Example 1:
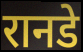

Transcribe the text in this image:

रानडे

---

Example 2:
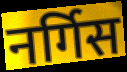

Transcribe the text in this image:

नर्गिस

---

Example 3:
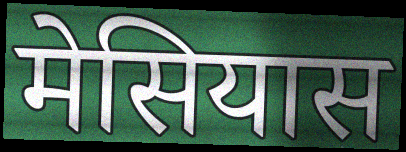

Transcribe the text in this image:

मेसियास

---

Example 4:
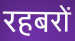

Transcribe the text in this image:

रहबरों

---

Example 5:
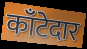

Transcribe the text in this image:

काँटेदार